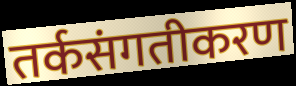
तर्कसंगतीकरण